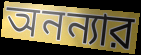
অনন্যার